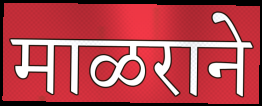
माळराने